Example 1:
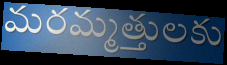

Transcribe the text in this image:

మరమ్మత్తులకు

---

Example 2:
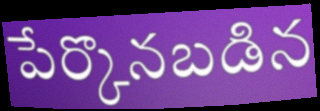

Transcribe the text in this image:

పేర్కొనబడిన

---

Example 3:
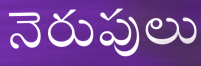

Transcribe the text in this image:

నెరుపులు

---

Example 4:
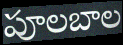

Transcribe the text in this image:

పూలబాల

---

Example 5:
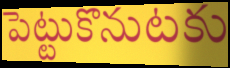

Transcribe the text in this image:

పెట్టుకొనుటకు